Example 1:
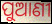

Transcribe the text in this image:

ପୁଆଣୀ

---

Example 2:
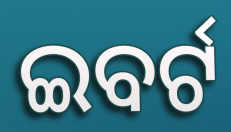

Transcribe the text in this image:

ଇବର୍ଟ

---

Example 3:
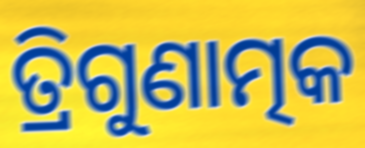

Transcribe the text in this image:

ତ୍ରିଗୁଣାତ୍ମକ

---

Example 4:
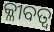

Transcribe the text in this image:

କ୍ଳୀବତ୍ବ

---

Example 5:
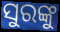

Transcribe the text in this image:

ସୁରଙ୍କୁ